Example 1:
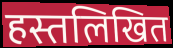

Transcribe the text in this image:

हस्तलिखित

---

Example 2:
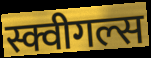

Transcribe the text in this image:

स्क्वीगल्स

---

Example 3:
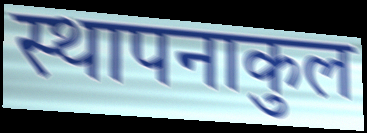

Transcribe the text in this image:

स्थापनाकुल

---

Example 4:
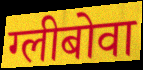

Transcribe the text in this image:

ग्लीबोवा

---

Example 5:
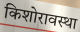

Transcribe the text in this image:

किशोरावस्था